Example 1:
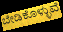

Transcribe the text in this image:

ಬೇಡಿಕೊಳ್ಳುವೆ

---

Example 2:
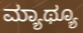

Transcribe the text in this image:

ಮ್ಯಾಥ್ಯೂ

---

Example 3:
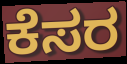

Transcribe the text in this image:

ಕೆಸರ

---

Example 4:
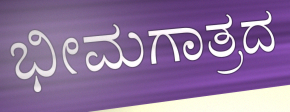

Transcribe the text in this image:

ಭೀಮಗಾತ್ರದ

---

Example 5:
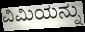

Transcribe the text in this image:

ವಿಮಿಯನ್ನು